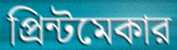
প্রিন্টমেকার